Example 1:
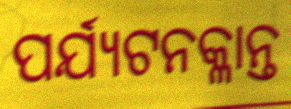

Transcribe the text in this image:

ପର୍ଯ୍ୟଟନକ୍ଳାନ୍ତ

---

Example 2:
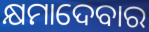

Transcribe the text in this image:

କ୍ଷମାଦେବାର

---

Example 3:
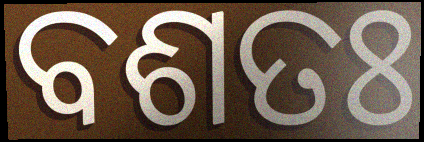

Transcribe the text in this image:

ବଶତଃ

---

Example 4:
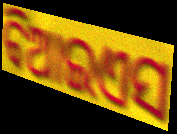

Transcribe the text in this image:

ବିଆଇଏସ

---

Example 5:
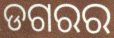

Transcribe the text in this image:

ଡଗରର